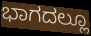
ಭಾಗದಲ್ಲೂ